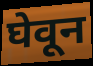
घेवून